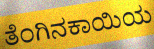
ತೆಂಗಿನಕಾಯಿಯ